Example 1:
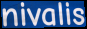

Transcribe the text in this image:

nivalis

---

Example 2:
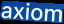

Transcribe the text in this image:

axiom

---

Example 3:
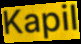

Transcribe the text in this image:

Kapil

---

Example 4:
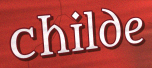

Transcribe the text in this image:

childe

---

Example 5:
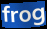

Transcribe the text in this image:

frog